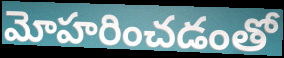
మోహరించడంతో